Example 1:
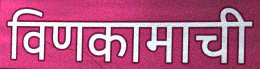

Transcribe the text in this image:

विणकामाची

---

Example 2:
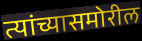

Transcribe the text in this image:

त्यांच्यासमोरील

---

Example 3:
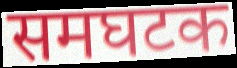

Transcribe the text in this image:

समघटक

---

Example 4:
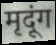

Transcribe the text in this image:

मृदूंग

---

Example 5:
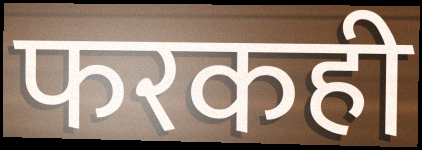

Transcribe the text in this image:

फरकही